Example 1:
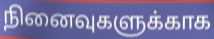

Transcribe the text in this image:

நினைவுகளுக்காக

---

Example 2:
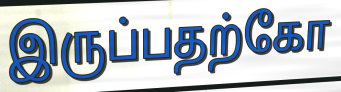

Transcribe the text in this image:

இருப்பதற்கோ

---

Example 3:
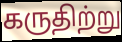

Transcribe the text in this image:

கருதிற்று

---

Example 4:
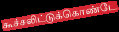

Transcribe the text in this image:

கூச்சலிட்டுக்கொண்டே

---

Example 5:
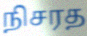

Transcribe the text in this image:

நிசரத